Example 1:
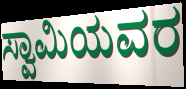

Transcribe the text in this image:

ಸ್ವಾಮಿಯವರ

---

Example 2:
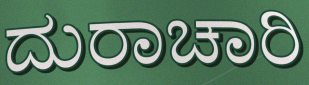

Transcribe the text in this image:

ದುರಾಚಾರಿ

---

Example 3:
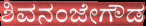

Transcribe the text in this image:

ಶಿವನಂಜೇಗೌಡ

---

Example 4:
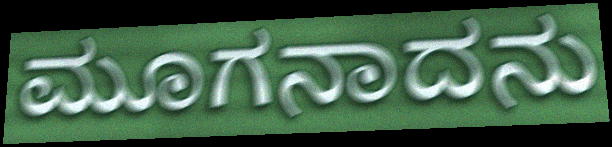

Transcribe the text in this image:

ಮೂಗನಾದನು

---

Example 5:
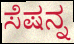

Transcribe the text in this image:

ಸೆಷನ್ನ